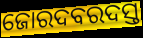
ଜୋରଦବରଦସ୍ତ